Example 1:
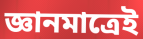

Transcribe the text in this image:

জ্ঞানমাত্রেই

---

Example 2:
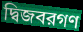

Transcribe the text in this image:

দ্বিজবরগণ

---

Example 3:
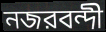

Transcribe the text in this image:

নজরবন্দী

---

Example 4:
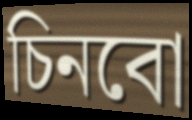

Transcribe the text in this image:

চিনবো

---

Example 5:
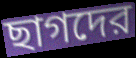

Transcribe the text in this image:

ছাগদের